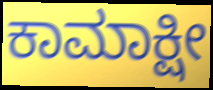
ಕಾಮಾಕ್ಷೀ